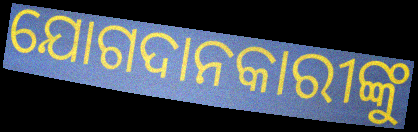
ଯୋଗଦାନକାରୀଙ୍କୁ